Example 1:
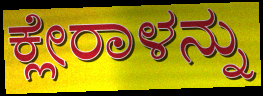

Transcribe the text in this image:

ಕ್ಲೇರಾಳನ್ನು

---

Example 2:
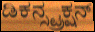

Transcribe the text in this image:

ಡಿಕನ್ಸ್ಟ್ರಕ್ಷನ್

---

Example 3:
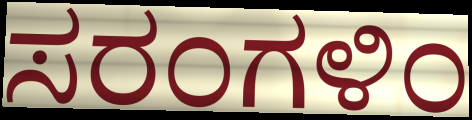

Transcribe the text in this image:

ಸರಂಗಳಿಂ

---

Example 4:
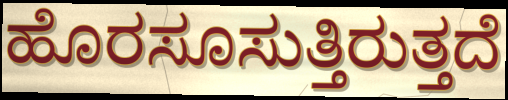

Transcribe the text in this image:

ಹೊರಸೂಸುತ್ತಿರುತ್ತದೆ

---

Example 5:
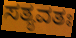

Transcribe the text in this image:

ಸತ್ಯವತಃ